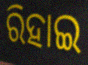
ରିହାଇ